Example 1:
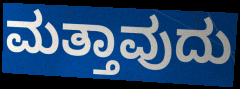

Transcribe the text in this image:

ಮತ್ತಾವುದು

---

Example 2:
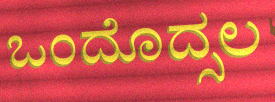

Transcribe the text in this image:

ಒಂದೊದ್ಸಲ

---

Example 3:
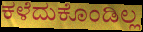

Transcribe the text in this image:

ಕಳೆದುಕೊಂಡಿಲ್ಲ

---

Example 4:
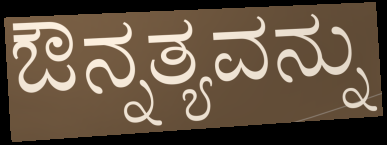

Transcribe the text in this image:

ಔನ್ನತ್ಯವನ್ನು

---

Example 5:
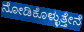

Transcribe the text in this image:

ನೋಡಿಕೊಳ್ಳುತ್ತೇನೆ